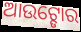
ଆଉଟ୍ଡୋର